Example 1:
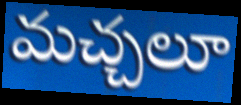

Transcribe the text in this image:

మచ్చలూ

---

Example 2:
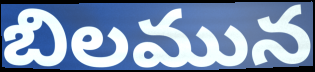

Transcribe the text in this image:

బిలమున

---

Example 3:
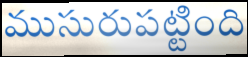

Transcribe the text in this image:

ముసురుపట్టింది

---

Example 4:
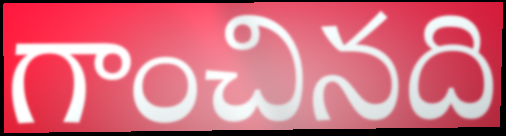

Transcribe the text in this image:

గాంచినది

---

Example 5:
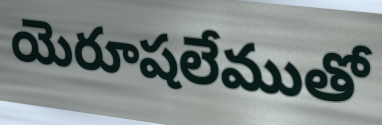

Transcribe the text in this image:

యెరూషలేముతో